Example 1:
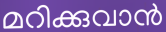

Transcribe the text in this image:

മറിക്കുവാൻ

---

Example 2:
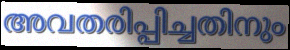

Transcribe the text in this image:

അവതരിപ്പിച്ചതിനും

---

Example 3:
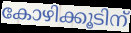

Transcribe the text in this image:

കോഴിക്കൂടിന്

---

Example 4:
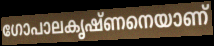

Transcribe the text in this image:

ഗോപാലകൃഷ്ണനെയാണ്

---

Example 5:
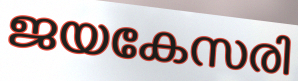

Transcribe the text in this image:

ജയകേസരി